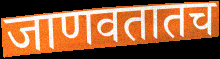
जाणवतातच